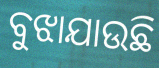
ବୁଝାଯାଉଛି